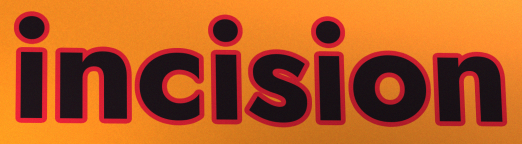
incision